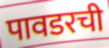
पावडरची